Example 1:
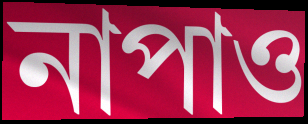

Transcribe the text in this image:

নাপাও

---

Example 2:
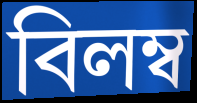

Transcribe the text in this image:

বিলম্ব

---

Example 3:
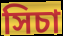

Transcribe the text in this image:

সিচা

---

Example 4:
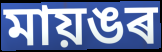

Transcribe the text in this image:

মায়ঙৰ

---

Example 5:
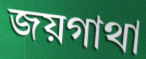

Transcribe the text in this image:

জয়গাথা